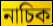
নাচিক